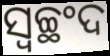
ସ୍ୱଚ୍ଛଂଦ